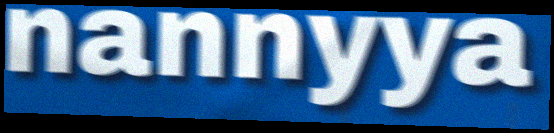
nannyya